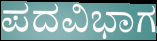
ಪದವಿಭಾಗ